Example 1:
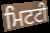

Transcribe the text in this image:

ਮਿਟਟੀ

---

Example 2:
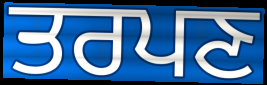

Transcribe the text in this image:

ਤਰਪਣ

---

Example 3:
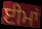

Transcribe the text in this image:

ਈਮਾਂ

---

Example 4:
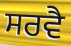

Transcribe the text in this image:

ਸਰਵੈ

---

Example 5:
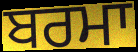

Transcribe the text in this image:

ਬਰਮਾ